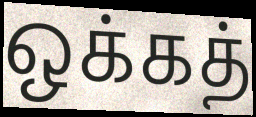
ஒக்கத்